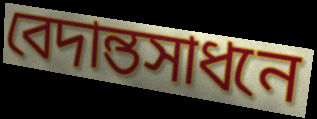
বেদান্তসাধনে